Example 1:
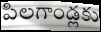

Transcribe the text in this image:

పిలగాండ్లకు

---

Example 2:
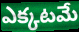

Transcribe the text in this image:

ఎక్కటమే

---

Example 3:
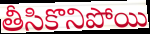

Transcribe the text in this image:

తీసికొనిపోయి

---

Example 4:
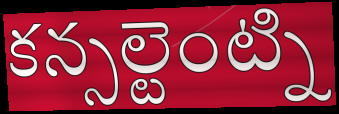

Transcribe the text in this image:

కన్సల్టెంట్ని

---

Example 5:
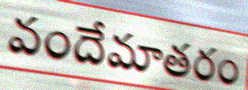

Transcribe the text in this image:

వందేమాతరం